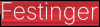
Festinger